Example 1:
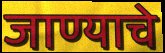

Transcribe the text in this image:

जाण्याचे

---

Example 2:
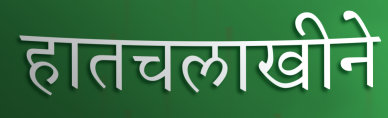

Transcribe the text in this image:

हातचलाखीने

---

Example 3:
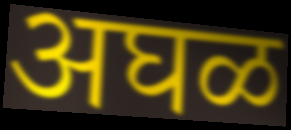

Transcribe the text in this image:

अघळ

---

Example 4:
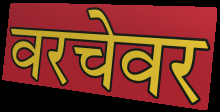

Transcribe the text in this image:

वरचेवर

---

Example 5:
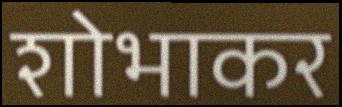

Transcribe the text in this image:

शोभाकर